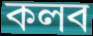
কলব